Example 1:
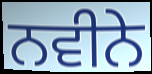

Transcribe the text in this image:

ਨਵੀਨੇ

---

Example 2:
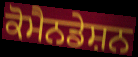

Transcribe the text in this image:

ਕੋਮੈਨਡੇਸ਼ਨ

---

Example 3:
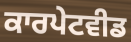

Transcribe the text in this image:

ਕਾਰਪੇਟਵੀਡ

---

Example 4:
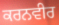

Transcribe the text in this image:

ਕਰਨਵੀਰ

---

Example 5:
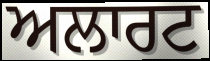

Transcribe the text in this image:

ਅਲਾਰਟ